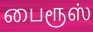
பைரூஸ்